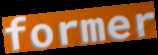
former